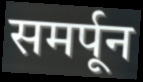
समर्पून